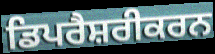
ਡਿਪਰੈਸ਼ਰੀਕਰਨ